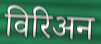
विरिअन